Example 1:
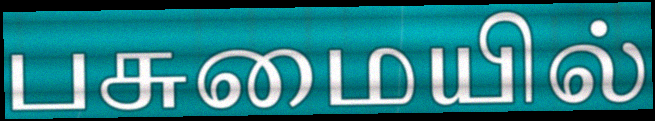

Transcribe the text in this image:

பசுமையில்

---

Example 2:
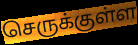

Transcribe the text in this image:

செருக்குள்ள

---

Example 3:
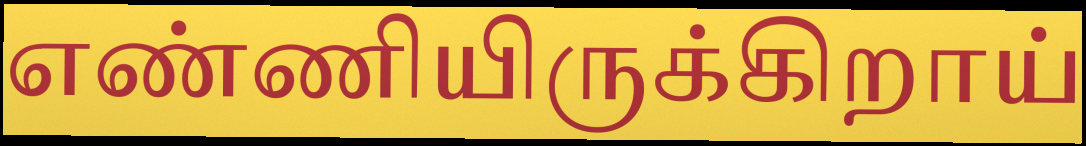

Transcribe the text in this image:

எண்ணியிருக்கிறாய்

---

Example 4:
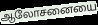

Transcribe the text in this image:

ஆலோசனையை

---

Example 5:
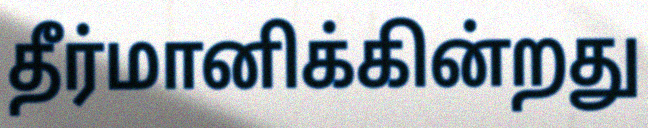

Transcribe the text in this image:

தீர்மானிக்கின்றது